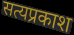
सत्यप्रकाश